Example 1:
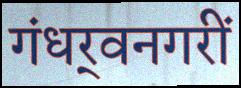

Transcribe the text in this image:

गंधर्वनगरीं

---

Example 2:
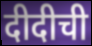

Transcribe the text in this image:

दीदीची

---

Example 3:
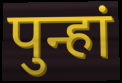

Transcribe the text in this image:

पुन्हां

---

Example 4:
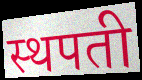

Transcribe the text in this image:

स्थपती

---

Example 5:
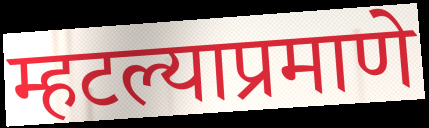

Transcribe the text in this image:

म्हटल्याप्रमाणे